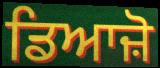
ਡਿਆਜ਼ੋ